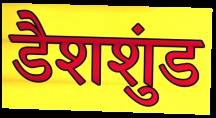
डैशशुंड